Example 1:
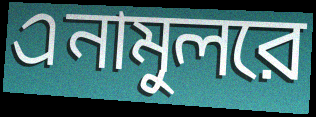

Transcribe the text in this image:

এনামুলরে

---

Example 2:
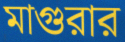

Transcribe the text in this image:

মাগুরার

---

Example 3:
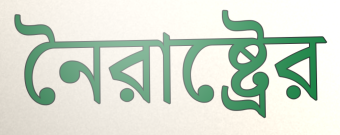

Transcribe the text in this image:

নৈরাষ্ট্রের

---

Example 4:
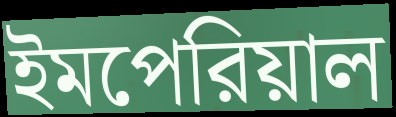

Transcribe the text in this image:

ইমপেরিয়াল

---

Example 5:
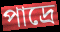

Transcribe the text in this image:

পাদ্রে